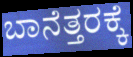
ಬಾನೆತ್ತರಕ್ಕೆ